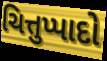
ચિત્તુપ્પાદો